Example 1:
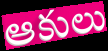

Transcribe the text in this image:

ఆకులు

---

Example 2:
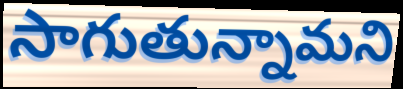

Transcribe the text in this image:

సాగుతున్నామని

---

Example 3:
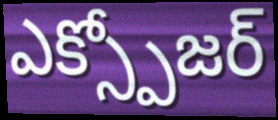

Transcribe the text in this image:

ఎక్స్పోజర్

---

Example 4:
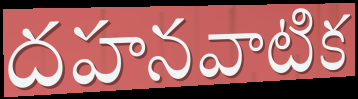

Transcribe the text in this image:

దహనవాటిక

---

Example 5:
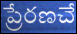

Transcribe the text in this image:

ప్రేరణచే